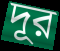
দূর